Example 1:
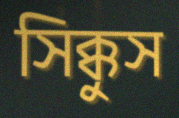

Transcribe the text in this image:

সিক্কুস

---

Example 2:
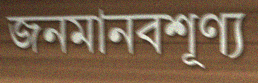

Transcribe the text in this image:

জনমানবশূণ্য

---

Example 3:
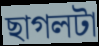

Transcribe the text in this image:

ছাগলটা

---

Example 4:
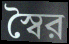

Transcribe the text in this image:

স্বৈর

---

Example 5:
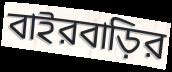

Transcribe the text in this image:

বাইরবাড়ির